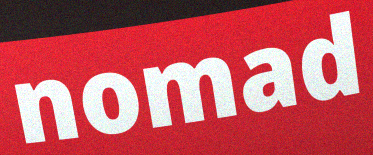
nomad